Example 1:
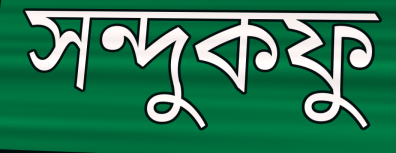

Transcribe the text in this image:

সন্দুকফু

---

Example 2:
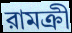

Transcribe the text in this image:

রামক্রী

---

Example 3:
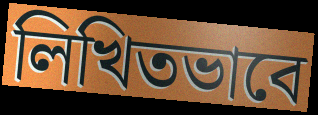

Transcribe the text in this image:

লিখিতভাবে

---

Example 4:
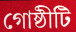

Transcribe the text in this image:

গোষ্ঠীটি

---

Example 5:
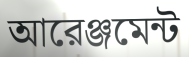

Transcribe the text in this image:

আরেঞ্জমেন্ট